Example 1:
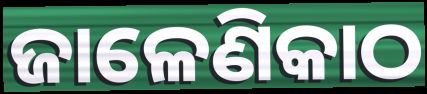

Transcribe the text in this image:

ଜାଳେଣିକାଠ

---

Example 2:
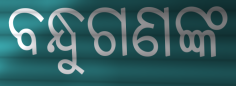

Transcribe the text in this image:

ବନ୍ଧୁଗଣଙ୍କ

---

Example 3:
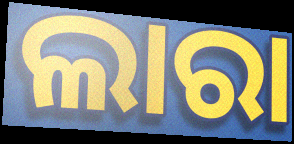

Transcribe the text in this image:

ଲାରା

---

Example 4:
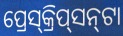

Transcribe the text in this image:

ପ୍ରେସ୍‌କ୍ରିପ୍‌ସନ୍‌ଟା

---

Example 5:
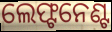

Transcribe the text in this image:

ଲେଫ୍ଟନେଣ୍ଟ